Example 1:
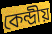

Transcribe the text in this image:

কেন্দ্রীয়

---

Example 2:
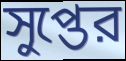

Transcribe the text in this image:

সুপ্তের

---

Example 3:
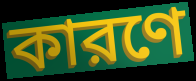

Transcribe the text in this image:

কারণে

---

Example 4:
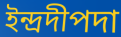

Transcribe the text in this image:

ইন্দ্রদীপদা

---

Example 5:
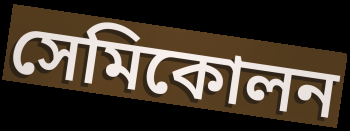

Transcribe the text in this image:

সেমিকোলন